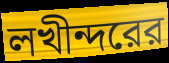
লখীন্দরের